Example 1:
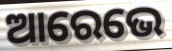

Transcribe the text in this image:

ଆରେଭେ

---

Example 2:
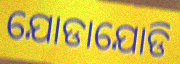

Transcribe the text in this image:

ଯୋଡାଯୋଡି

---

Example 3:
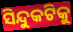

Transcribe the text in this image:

ସିନ୍ଦୁକଟିକୁ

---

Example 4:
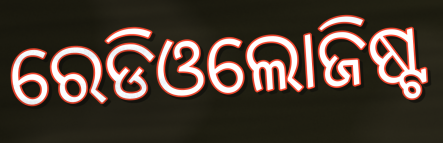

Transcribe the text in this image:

ରେଡିଓଲୋଜିଷ୍ଟ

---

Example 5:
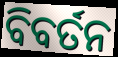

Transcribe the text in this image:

ବିବର୍ତନ